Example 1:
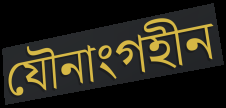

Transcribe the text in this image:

যৌনাংগহীন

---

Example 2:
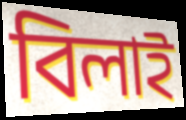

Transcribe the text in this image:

বিলাই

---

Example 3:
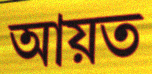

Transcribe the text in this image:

আয়ত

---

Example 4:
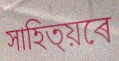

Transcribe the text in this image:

সাহিত্য়ৰে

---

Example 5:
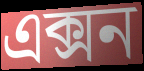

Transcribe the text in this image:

এক্সন